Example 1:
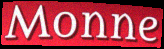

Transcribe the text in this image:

Monne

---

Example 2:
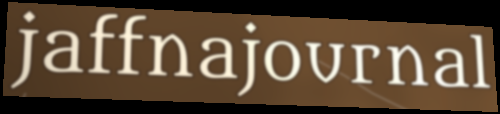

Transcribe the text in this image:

jaffnajournal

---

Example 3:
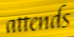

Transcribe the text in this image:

attends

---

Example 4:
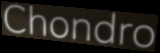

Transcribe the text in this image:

Chondro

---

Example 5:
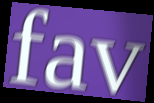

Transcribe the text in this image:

fav